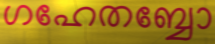
ഗഹേതബ്ബോ